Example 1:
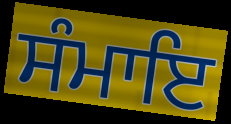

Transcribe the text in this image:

ਸੰਮਾਇ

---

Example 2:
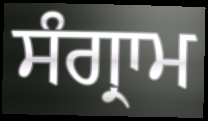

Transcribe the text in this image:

ਸੰਗ੍ਰਾਮ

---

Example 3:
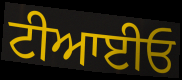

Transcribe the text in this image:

ਟੀਆਈਓ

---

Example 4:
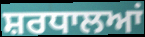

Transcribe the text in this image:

ਸ਼ਰਧਾਲਆਂ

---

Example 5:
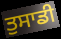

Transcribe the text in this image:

ਤੁਸਾਡੀ